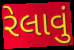
રેલાવું